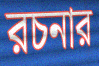
রচনার